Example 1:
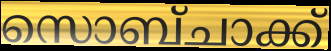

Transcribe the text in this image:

സൊബ്ചാക്ക്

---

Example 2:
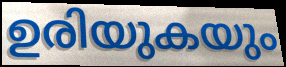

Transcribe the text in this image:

ഉരിയുകയും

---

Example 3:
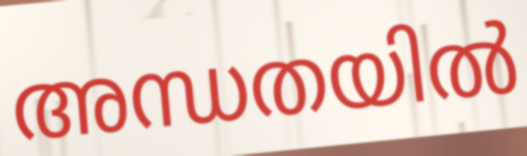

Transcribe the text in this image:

അന്ധതയിൽ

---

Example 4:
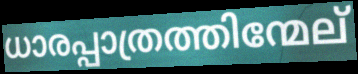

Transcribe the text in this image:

ധാരപ്പാത്രത്തിന്മേല്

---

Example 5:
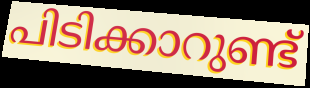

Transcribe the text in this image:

പിടിക്കാറുണ്ട്